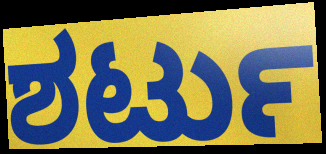
ಶರ್ಟು